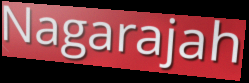
Nagarajah